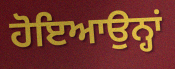
ਹੋਇਆਉਨ੍ਹਾਂ